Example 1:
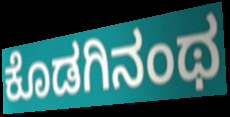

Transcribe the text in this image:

ಕೊಡಗಿನಂಥ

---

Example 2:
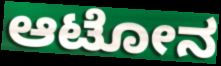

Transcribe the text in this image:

ಆಟೋನ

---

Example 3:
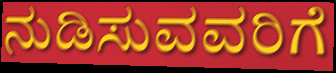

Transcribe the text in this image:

ನುಡಿಸುವವರಿಗೆ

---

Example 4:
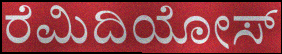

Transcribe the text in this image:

ರೆಮಿದಿಯೋಸ್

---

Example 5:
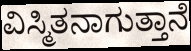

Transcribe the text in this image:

ವಿಸ್ಮಿತನಾಗುತ್ತಾನೆ